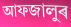
আফজালুৰ